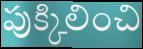
పుక్కిలించి